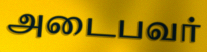
அடைபவர்